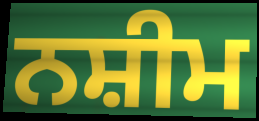
ਨਸ਼ੀਮ